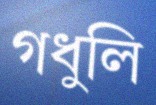
গধুলি